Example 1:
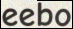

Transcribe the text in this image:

eebo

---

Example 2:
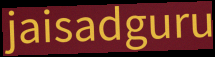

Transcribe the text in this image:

jaisadguru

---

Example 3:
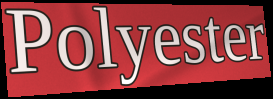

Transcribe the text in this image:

Polyester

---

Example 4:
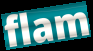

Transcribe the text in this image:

flam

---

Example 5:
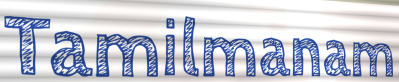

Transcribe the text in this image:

Tamilmanam